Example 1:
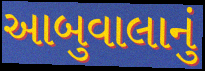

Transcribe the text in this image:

આબુવાલાનું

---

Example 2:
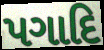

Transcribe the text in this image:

પગાદિ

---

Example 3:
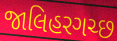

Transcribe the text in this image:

જાલિહરગચ્છ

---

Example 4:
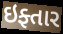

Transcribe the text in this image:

ઇફ્તાર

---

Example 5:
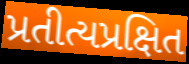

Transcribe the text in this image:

પ્રતીત્યપ્રક્ષિત